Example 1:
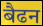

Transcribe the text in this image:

बैढन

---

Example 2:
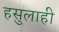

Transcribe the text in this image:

हसुलाही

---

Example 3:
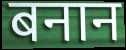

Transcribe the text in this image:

बनान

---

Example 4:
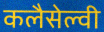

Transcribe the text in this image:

कलैसेल्वी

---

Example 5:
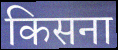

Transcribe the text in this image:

किसना